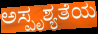
ಅಸ್ಪೃಶ್ಯತೆಯ